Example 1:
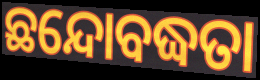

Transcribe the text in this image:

ଛନ୍ଦୋବଦ୍ଧତା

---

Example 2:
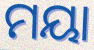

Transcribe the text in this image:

ମୟା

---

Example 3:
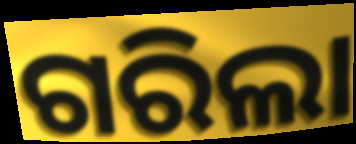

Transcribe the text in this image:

ଗରିଲା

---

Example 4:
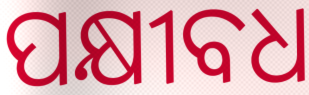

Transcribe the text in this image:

ପକ୍ଷୀବଧ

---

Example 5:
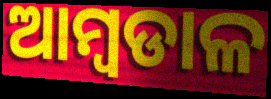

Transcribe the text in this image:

ଆମ୍ବଡାଳ